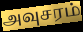
அவுசரம்